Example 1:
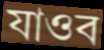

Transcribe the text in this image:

যাওব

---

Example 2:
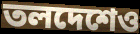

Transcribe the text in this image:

তলদেশেও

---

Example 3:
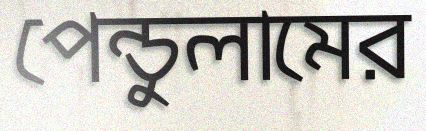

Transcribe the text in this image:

পেন্ডুলামের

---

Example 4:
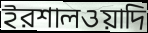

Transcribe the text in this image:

ইরশালওয়াদি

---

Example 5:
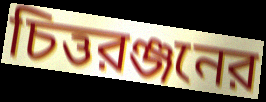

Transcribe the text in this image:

চিত্তরঞ্জনের